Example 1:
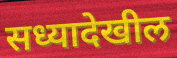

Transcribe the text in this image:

सध्यादेखील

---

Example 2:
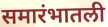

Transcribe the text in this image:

समारंभातली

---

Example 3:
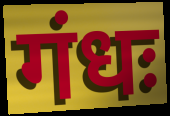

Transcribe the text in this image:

गंधः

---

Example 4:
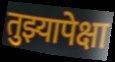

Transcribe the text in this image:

तुझ्यापेक्षा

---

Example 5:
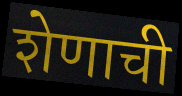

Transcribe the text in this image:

शेणाची